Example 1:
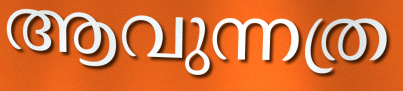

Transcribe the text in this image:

ആവുന്നത്ര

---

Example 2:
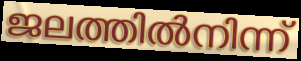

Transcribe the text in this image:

ജലത്തിൽനിന്ന്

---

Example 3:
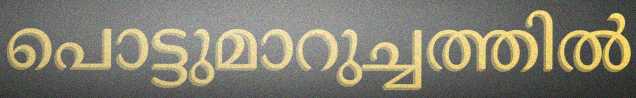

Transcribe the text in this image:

പൊട്ടുമാറുച്ചത്തിൽ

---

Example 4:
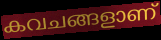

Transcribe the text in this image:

കവചങ്ങളാണ്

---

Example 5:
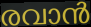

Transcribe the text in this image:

രവാൻ